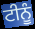
ਟੀਨੂੰ